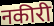
नकीरी